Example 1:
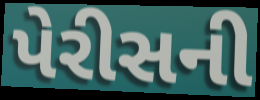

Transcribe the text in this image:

પેરીસની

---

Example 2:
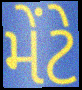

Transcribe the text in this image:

મેંટે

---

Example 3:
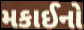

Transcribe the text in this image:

મકાઈનો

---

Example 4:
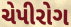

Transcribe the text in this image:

ચેપીરોગ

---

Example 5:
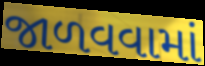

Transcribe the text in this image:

જાળવવામાં